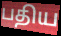
பதிய